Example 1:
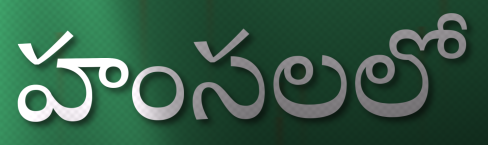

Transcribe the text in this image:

హంసలలో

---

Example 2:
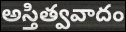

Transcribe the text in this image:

అస్తిత్వవాదం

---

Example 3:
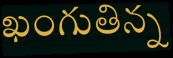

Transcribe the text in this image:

ఖంగుతిన్న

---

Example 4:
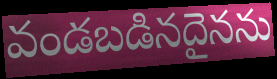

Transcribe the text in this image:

వండబడినదైనను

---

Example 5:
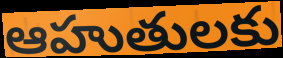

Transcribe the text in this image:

ఆహుతులకు